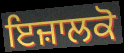
ਇਜ਼ਾਲਕੋ